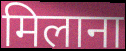
मिलाना